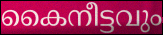
കൈനീട്ടവും